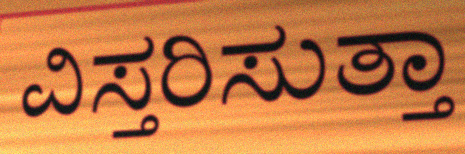
ವಿಸ್ತರಿಸುತ್ತಾ